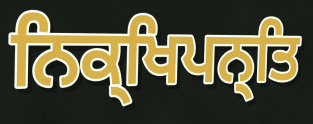
ਨਿਕ੍ਖਿਪਨ੍ਤਿ